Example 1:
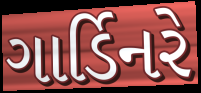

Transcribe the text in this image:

ગાર્ડિનરે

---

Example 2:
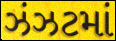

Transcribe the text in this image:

ઝંઝટમાં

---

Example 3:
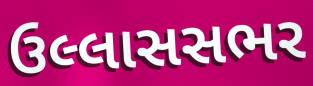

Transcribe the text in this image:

ઉલ્લાસસભર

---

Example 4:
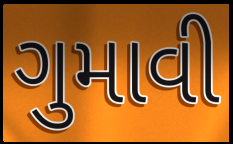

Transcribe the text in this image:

ગુમાવી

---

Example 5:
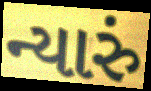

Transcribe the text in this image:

ન્યારું